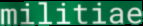
militiae